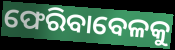
ଫେରିବାବେଳକୁ